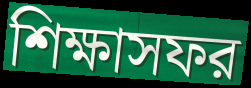
শিক্ষাসফর